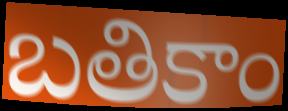
బతికాం